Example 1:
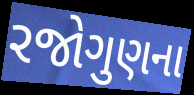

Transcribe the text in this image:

રજોગુણના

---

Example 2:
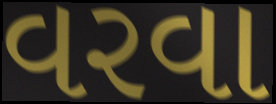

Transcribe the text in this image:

વરવા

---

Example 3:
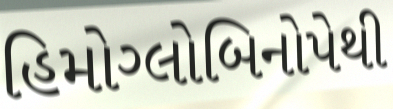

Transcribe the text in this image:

હિમોગ્લોબિનોપેથી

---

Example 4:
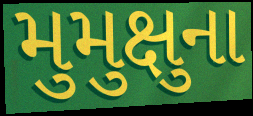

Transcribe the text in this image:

મુમુક્ષુના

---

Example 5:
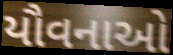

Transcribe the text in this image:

યૌવનાઓ